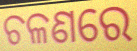
ଚଳଣରେ